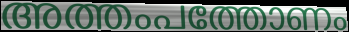
അത്തംപത്തോണം